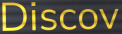
Discov